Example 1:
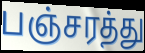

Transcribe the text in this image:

பஞ்சரத்து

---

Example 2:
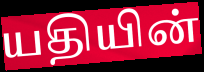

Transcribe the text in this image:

யதியின்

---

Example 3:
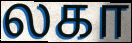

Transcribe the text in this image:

லகா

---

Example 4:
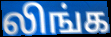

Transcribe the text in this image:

லிங்க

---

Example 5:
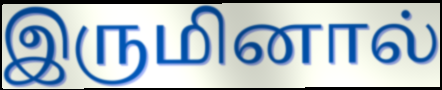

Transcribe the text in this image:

இருமினால்